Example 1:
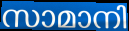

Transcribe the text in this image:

സാമാനി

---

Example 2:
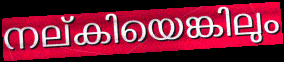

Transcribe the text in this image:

നല്‌കിയെങ്കിലും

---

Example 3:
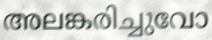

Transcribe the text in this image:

അലങ്കരിച്ചുവോ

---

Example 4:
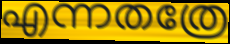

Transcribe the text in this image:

എന്നതത്രേ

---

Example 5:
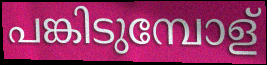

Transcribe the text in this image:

പങ്കിടുമ്പോള്